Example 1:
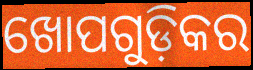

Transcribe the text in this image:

ଖୋପଗୁଡ଼ିକର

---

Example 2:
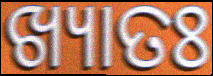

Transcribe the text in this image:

ଖ୍ୟାତଃ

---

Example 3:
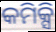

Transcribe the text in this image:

କମିକ୍ସି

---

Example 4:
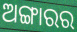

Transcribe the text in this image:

ଅଙ୍ଗାରର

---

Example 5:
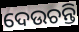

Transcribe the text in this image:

ଦେଉଚନ୍ତି